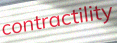
contractility